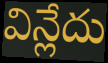
విన్లేదు